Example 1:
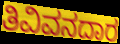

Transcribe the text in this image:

ತಿವಿವನದಾರ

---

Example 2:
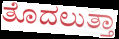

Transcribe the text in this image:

ತೊದಲುತ್ತಾ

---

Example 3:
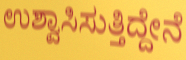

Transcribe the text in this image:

ಉಶ್ವಾಸಿಸುತ್ತಿದ್ದೇನೆ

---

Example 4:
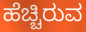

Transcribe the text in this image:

ಹೆಚ್ಚಿರುವ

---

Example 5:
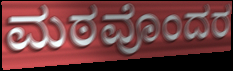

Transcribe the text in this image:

ಮಠವೊಂದರ